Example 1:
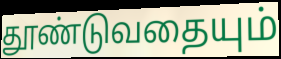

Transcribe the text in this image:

தூண்டுவதையும்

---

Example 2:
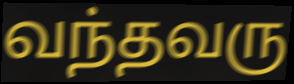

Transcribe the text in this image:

வந்தவரு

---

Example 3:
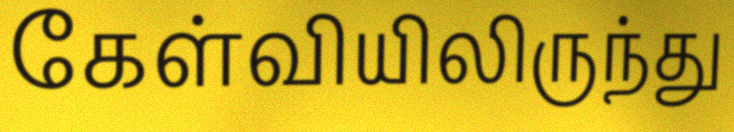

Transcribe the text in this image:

கேள்வியிலிருந்து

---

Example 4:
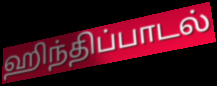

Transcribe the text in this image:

ஹிந்திப்பாடல்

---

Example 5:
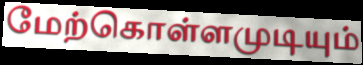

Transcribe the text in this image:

மேற்கொள்ளமுடியும்